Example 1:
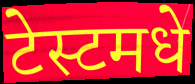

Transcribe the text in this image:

टेस्टमधे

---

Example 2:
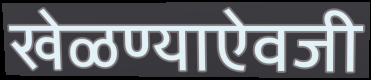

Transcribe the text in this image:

खेळण्याऐवजी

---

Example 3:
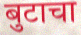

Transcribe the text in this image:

बुटाचा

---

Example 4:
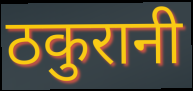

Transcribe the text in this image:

ठकुरानी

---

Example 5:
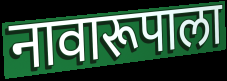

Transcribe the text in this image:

नावारूपाला